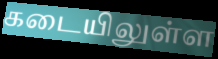
கடையிலுள்ள